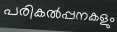
പരികൽപ്പനകളും